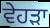
ਵੇਹੜਾ